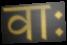
वाः